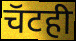
चॅटही